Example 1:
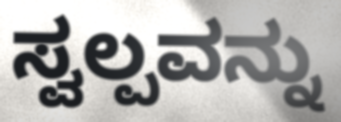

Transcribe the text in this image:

ಸ್ವಲ್ಪವನ್ನು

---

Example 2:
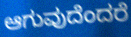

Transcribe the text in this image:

ಆಗುವುದೆಂದರೆ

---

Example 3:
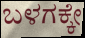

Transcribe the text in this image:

ಬಳಗಕ್ಕೇ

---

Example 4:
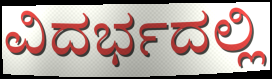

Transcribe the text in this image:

ವಿದರ್ಭದಲ್ಲಿ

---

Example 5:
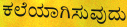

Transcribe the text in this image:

ಕಲೆಯಾಗಿಸುವುದು